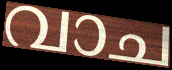
വാച